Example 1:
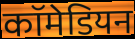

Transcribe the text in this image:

कॉमेडियन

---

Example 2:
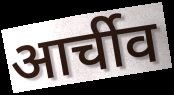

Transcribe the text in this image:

आर्चीव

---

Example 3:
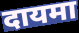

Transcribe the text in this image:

दायमा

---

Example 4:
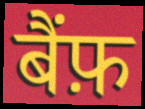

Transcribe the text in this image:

बैंफ़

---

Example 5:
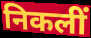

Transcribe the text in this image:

निकलीं